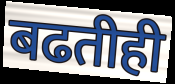
बढतीही